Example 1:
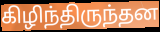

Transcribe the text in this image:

கிழிந்திருந்தன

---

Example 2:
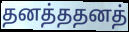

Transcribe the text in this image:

தனத்ததனத்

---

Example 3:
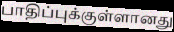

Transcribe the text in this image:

பாதிப்புக்குள்ளானது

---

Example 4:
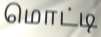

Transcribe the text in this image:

மொட்டி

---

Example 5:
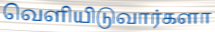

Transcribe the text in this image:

வெளியிடுவார்களா